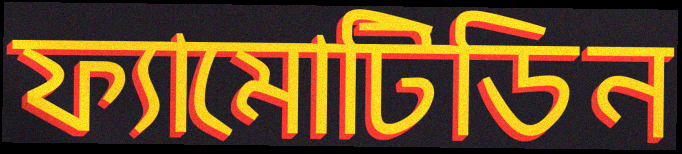
ফ্যামোটিডিন